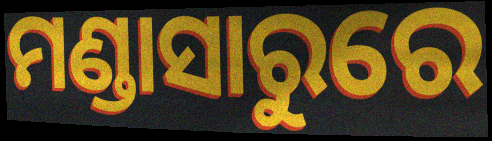
ମଣ୍ଡାସାରୁରେ